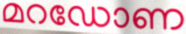
മറഡോണ